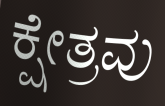
ಕ್ಷೇತ್ರವು